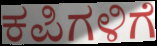
ಕಪಿಗಳಿಗೆ